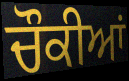
ਚੌਕੀਆਂ